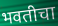
भवतीचा